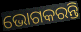
ଭୋଗକରନ୍ତି